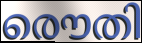
രൌതി